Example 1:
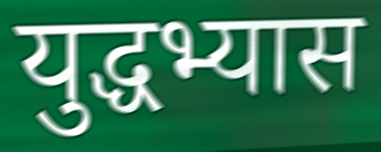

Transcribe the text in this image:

युद्धभ्यास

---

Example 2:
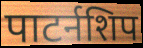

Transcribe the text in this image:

पाटर्नशिप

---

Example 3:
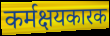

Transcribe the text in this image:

कर्मक्षयकारक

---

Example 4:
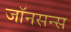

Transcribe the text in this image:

जॉनसन्स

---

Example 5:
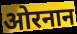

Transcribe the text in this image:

ओरनान